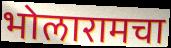
भोलारामचा